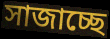
সাজাচ্ছে